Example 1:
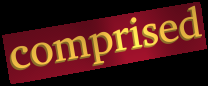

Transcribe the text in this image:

comprised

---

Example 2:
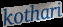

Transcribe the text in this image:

kothari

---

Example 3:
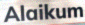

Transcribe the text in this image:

Alaikum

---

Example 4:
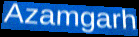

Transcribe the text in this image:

Azamgarh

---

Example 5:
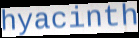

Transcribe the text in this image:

hyacinth